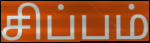
சிப்பம்